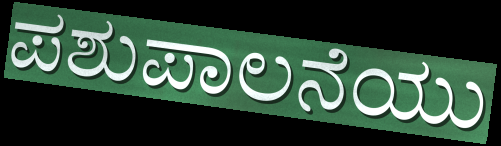
ಪಶುಪಾಲನೆಯು